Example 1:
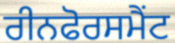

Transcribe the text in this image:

ਰੀਨਫੋਰਸਮੈਂਟ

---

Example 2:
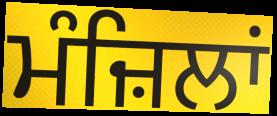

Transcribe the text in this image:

ਮੰਜ਼ਿਲਾਂ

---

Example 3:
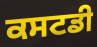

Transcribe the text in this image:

ਕਸਟਡੀ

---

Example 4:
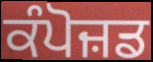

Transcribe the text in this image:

ਕੰਪੋਜ਼ਡ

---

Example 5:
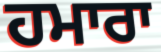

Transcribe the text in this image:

ਹਮਾਰਾ